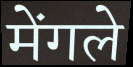
मेंगले